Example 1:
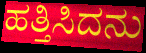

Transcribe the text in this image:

ಹತ್ತಿಸಿದನು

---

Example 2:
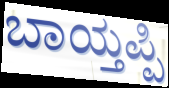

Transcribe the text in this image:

ಬಾಯ್ತಪ್ಪಿ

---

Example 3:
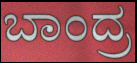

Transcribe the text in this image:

ಬಾಂದ್ರ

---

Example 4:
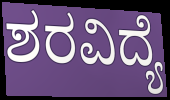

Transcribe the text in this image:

ಶರವಿದ್ಯೆ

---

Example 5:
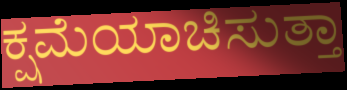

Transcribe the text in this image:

ಕ್ಷಮೆಯಾಚಿಸುತ್ತಾ